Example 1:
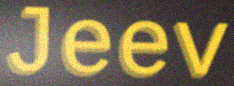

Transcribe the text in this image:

Jeev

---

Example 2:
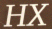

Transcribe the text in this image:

HX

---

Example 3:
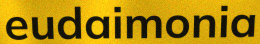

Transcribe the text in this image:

eudaimonia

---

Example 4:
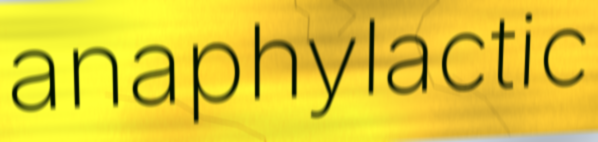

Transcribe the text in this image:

anaphylactic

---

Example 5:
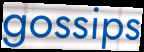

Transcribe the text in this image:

gossips